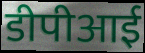
डीपीआई